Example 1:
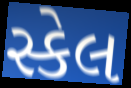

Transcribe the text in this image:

સ્કેલ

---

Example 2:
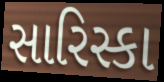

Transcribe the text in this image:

સારિસ્કા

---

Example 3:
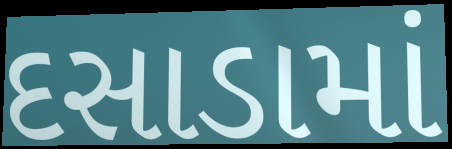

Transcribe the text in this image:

દસાડામાં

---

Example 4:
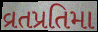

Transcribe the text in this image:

વ્રતપ્રતિમા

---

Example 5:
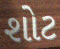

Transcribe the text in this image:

શોટ